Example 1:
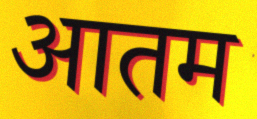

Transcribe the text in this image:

आतम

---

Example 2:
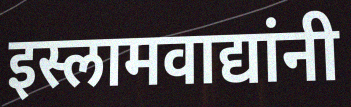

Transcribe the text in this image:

इस्लामवाद्यांनी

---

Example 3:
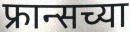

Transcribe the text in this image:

फ्रान्सच्या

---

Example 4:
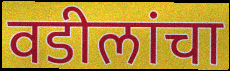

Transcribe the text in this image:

वडीलांचा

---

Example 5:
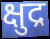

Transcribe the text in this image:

क्षुद्र